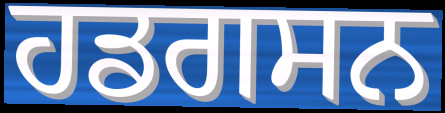
ਹਡਗਸਨ